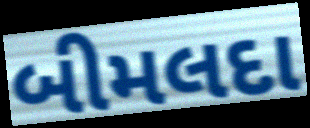
બીમલદા